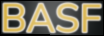
BASF